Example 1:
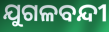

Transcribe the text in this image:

ଯୁଗଳବନ୍ଦୀ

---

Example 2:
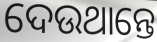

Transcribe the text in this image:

ଦେଉଥାନ୍ତେ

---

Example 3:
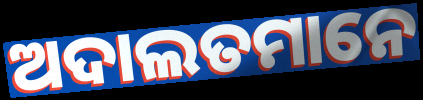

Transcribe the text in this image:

ଅଦାଲତମାନେ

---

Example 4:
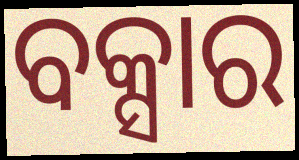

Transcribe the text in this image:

ବକ୍ସାର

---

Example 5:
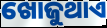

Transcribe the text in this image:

ଖୋଜୁଥାଏ